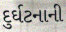
દુર્ઘટનાની